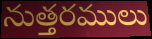
నుత్తరములు